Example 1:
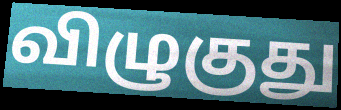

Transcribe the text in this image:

விழுகுது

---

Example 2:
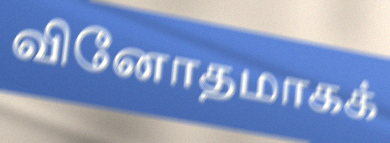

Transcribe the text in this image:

வினோதமாகக்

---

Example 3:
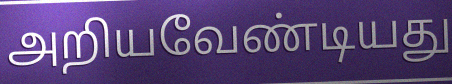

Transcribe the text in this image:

அறியவேண்டியது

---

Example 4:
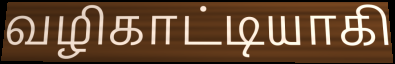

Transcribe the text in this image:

வழிகாட்டியாகி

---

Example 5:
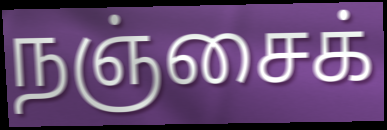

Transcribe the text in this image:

நஞ்சைக்